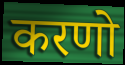
करणो